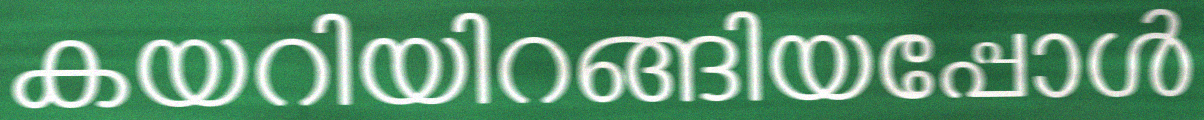
കയറിയിറങ്ങിയപ്പോൾ